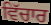
ਵਿੱਚਾਰ